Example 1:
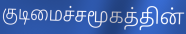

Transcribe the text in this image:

குடிமைச்சமூகத்தின்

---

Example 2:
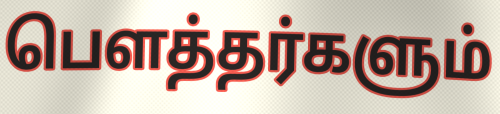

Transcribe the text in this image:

பௌத்தர்களும்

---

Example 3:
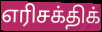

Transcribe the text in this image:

எரிசக்திக்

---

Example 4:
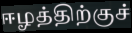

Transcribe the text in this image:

ஈழத்திற்குச்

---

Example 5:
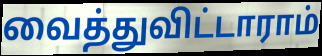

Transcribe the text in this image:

வைத்துவிட்டாராம்